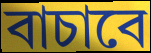
বাচাবে